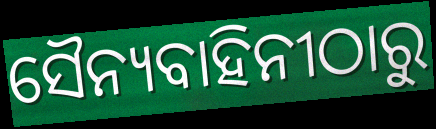
ସୈନ୍ୟବାହିନୀଠାରୁ